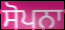
ਸੋਪਨਾ